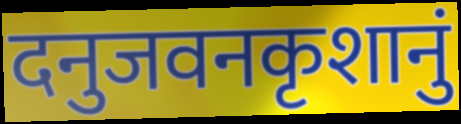
दनुजवनकृशानुं